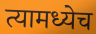
त्यामध्येच